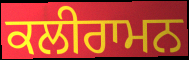
ਕਲੀਰਾਮਨ